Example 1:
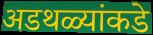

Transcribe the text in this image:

अडथळ्यांकडे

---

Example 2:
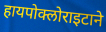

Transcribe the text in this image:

हायपोक्लोराइटाने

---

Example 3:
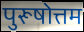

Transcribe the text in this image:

पुरूषोत्तम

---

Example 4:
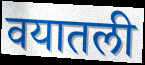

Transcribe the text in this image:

वयातली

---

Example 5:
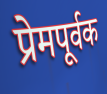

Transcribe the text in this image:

प्रेमपूर्वक